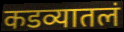
कडव्यातलं